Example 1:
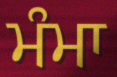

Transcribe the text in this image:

ਮੰਮਾ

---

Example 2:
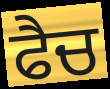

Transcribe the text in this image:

ਫੈਚ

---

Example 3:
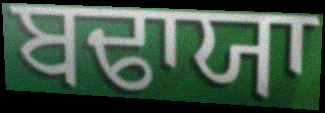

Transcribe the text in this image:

ਬਢਾਯਾ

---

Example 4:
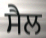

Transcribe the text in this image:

ਸੈਲ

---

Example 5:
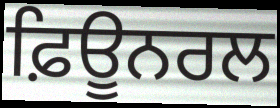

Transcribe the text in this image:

ਫ਼ਿਊਨਰਲ